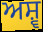
ਅਸ਼੍ਵ